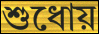
শুধোয়